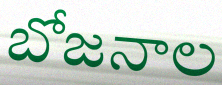
బోజనాల